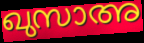
ഖുസാഅ